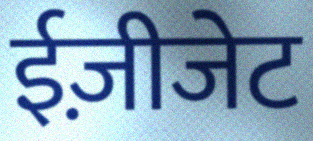
ईज़ीजेट